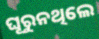
ଘୂରୁନଥିଲେ